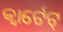
କ୍ୱାର୍ଟେଟ୍